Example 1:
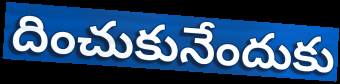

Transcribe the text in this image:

దించుకునేందుకు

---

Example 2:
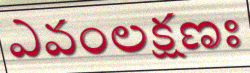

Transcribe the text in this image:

ఎవంలక్షణః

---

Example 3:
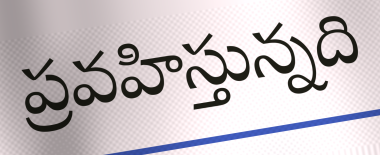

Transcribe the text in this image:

ప్రవహిస్తున్నది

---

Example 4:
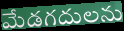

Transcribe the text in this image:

మేడగదులను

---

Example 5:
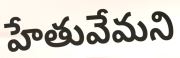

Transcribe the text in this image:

హేతువేమని